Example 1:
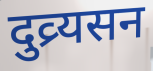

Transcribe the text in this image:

दुव्र्यसन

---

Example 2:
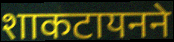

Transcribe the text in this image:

शाकटायनने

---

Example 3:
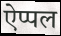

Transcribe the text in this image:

ऐप्पल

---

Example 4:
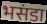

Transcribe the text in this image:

भसंडा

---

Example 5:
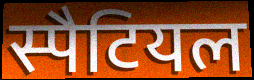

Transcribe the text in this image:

स्पैटियल